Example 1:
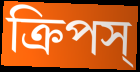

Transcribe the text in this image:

ক্রিপস্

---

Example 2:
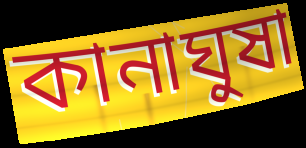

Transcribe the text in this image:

কানাঘুষা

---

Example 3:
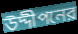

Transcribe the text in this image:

উদ্দীপনের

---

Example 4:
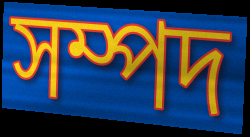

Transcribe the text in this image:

সম্পদ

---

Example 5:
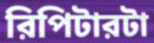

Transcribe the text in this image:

রিপিটারটা